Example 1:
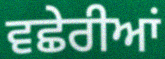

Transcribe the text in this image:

ਵਛੇਰੀਆਂ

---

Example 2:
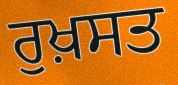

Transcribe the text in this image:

ਰੁਖ਼ਸਤ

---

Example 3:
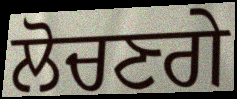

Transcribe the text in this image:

ਲੋਚਣਗੇ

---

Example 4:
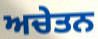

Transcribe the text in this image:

ਅਚੇਤਨ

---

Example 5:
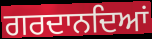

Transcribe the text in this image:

ਗਰਦਾਨਦਿਆਂ